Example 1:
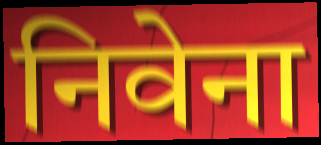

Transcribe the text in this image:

निवेना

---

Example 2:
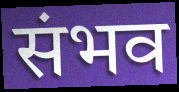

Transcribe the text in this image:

संभव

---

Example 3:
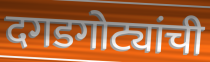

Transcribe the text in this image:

दगडगोट्यांची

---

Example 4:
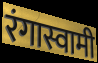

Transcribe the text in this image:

रंगास्वामी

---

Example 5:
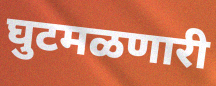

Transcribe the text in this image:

घुटमळणारी